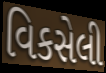
વિકસેલી